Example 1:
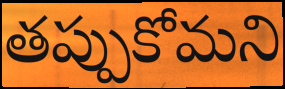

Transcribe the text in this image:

తప్పుకోమని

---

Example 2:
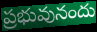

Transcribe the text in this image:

ప్రభువునందు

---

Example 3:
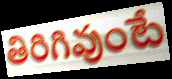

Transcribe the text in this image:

తిరిగివుంటే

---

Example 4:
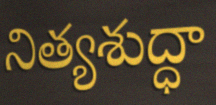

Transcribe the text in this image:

నిత్యశుద్ధా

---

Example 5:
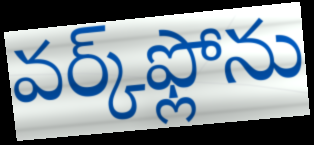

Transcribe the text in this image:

వర్క్‌ఫ్లోను